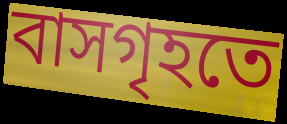
বাসগৃহতে